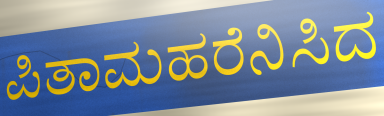
ಪಿತಾಮಹರೆನಿಸಿದ